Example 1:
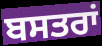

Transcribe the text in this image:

ਬਸਤਰਾਂ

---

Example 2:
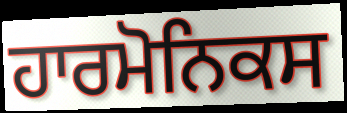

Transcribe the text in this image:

ਹਾਰਮੋਨਿਕਸ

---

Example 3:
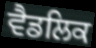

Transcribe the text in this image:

ਵੈਡਲਿਕ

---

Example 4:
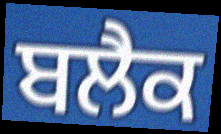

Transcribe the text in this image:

ਬਲੈਕ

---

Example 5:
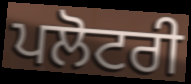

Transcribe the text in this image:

ਪਲੋਟਰੀ